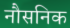
नौसनिक